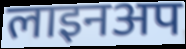
लाइनअप